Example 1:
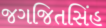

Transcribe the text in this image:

જગજિતસિંહ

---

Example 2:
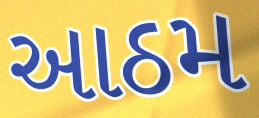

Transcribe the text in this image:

આઠમ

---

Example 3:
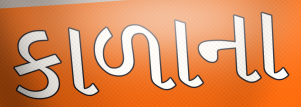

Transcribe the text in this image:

કાળાના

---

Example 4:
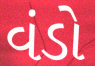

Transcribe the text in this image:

વંડો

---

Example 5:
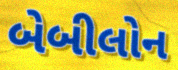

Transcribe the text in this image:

બેબીલોન